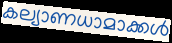
കല്യാണധാമാക്കൾ